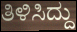
ತಿಳಿಸಿದ್ದು